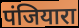
पंजियारा